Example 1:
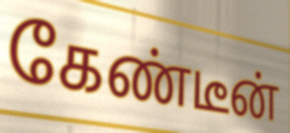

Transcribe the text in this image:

கேண்டீன்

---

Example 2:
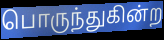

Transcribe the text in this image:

பொருந்துகின்ற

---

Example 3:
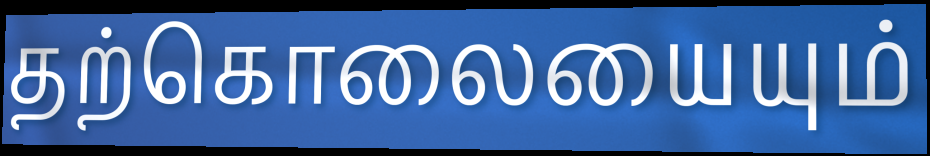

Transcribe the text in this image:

தற்கொலையையும்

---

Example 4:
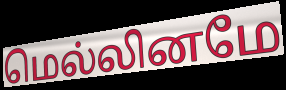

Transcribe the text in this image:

மெல்லினமே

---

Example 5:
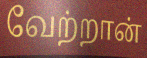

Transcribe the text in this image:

வேற்றான்